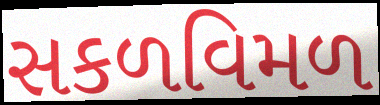
સકળવિમળ